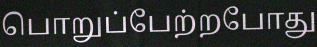
பொறுப்பேற்றபோது